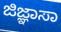
ಜಿಜ್ಞಾಸಾ